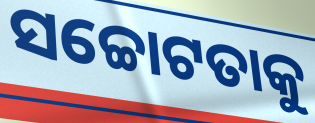
ସଚ୍ଚୋଟତାକୁ